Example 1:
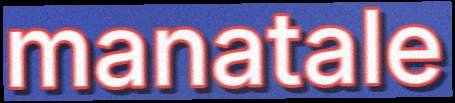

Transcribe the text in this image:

manatale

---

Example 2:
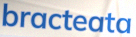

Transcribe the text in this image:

bracteata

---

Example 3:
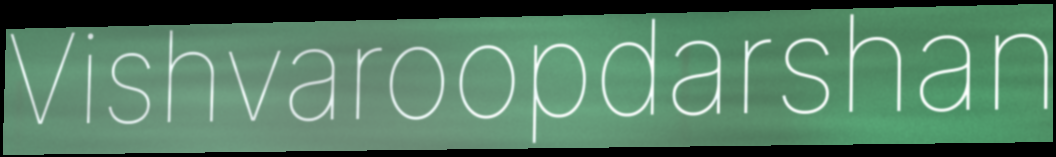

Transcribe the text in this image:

Vishvaroopdarshan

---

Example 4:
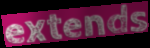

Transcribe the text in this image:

extends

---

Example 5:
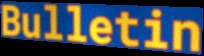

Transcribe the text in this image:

Bulletin